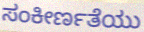
ಸಂಕೀರ್ಣತೆಯು